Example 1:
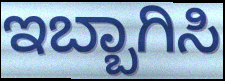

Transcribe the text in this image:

ಇಬ್ಬಾಗಿಸಿ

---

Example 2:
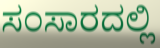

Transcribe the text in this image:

ಸಂಸಾರದಲ್ಲಿ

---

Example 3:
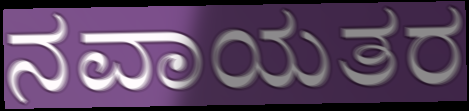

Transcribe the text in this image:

ನವಾಯತರ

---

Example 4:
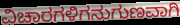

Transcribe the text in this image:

ವಿಚಾರಗಳಿಗನುಗುಣವಾಗಿ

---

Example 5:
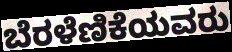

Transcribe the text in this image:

ಬೆರಳೆಣಿಕೆಯವರು